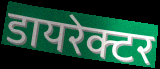
डायरेक्टर